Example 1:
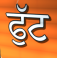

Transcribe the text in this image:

ਫੁੱਟ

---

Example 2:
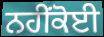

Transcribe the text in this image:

ਨਹੀਂਕੋਈ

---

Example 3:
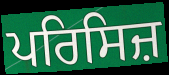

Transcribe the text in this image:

ਪਰਿਸਿਜ਼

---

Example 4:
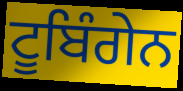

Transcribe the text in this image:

ਟੂਬਿੰਗੇਨ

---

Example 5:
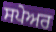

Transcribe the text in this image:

ਸਪੇਅਰ